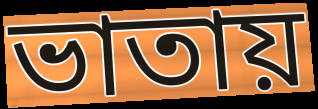
ভাতায়